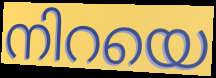
നിറയെ